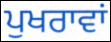
ਪੁਖਰਾਵਾਂ